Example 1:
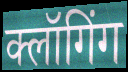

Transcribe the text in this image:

क्लॉगिंग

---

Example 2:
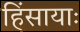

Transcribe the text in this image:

हिंसायाः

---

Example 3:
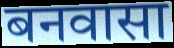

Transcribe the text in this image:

बनवासा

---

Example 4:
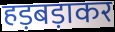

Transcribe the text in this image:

हड़बड़ाकर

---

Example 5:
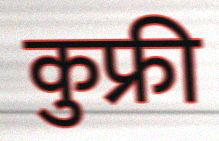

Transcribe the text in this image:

कुफ्री